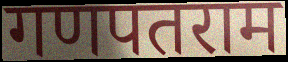
गणपतराम